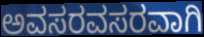
ಅವಸರವಸರವಾಗಿ